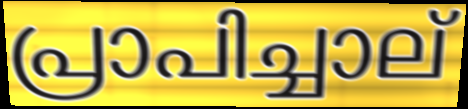
പ്രാപിച്ചാല്